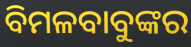
ବିମଳବାବୁଙ୍କର